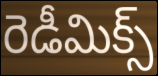
రెడీమిక్స్